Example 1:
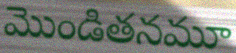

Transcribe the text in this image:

మొండితనమూ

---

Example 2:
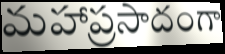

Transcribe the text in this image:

మహాప్రసాదంగా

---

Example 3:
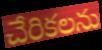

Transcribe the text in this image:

చేరికలను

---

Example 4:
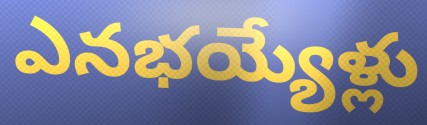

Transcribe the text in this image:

ఎనభయ్యేళ్లు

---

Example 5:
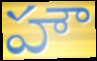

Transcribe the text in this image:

హౌ